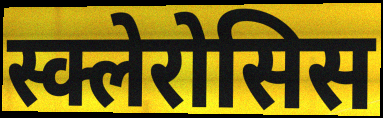
स्क्लेरोसिस